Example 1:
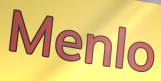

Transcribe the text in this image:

Menlo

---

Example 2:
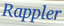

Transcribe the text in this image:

Rappler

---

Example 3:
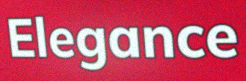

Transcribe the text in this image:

Elegance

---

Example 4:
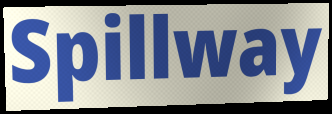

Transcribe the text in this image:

Spillway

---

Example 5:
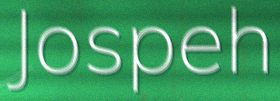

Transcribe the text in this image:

Jospeh